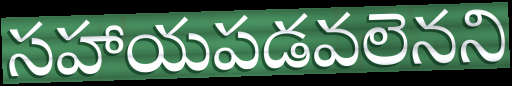
సహాయపడవలెనని